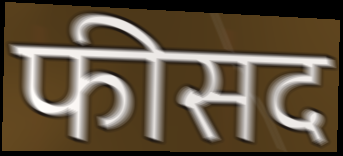
फीसद